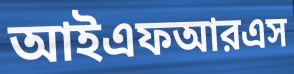
আইএফআরএস